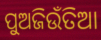
ପୁଅଜିଉଁତିଆ